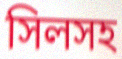
সিলসহ